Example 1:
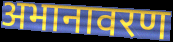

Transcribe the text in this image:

अभानावरण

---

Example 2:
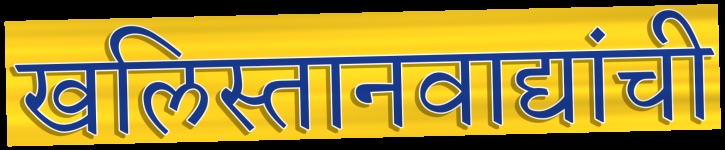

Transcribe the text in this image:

खलिस्तानवाद्यांची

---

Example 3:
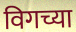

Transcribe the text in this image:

विगच्या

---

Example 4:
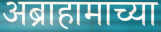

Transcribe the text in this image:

अब्राहामाच्या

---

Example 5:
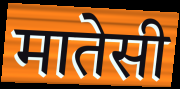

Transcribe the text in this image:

मातेसी